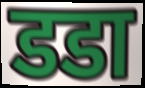
डडा